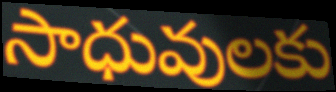
సాధువులకు